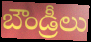
బౌండ్రీలు